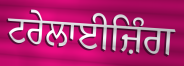
ਟਰੇਲਾਈਜ਼ਿੰਗ